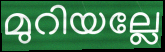
മുറിയല്ലേ